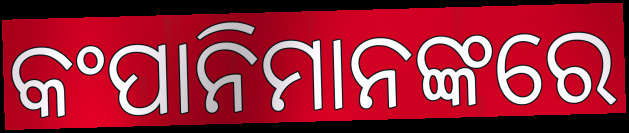
କଂପାନିମାନଙ୍କରେ